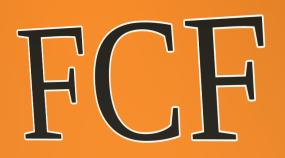
FCF